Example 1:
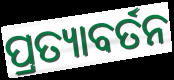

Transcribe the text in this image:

ପ୍ରତ୍ୟାବର୍ତନ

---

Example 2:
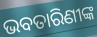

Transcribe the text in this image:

ଭବତାରିଣୀଙ୍କ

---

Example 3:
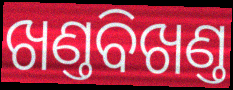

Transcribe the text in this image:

ଖଣ୍ତବିଖଣ୍ତ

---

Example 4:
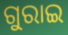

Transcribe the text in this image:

ଗୁରାଇ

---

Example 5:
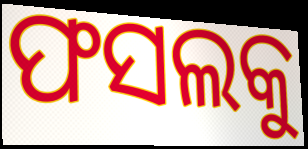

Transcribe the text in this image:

ଫସଲକୁ